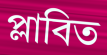
প্লাবিত